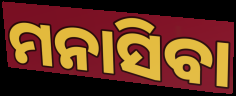
ମନାସିବା